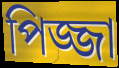
পিজ্জা